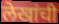
लेखांची